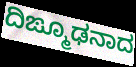
ದಿಙ್ಮೂಢನಾದ